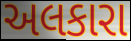
અલકારા